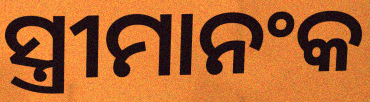
ସ୍ତ୍ରୀମାନଂକ